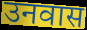
उनवास